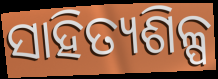
ସାହିତ୍ୟଶିଳ୍ପ